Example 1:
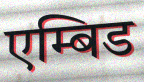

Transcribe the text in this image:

एम्बिड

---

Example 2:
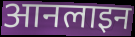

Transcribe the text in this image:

आनलाइन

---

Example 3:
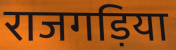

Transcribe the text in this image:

राजगड़िया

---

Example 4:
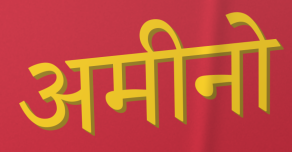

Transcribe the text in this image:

अमीनो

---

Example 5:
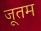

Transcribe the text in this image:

जूतम